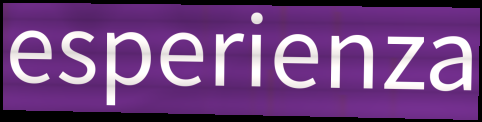
esperienza